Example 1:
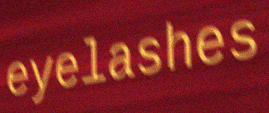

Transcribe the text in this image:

eyelashes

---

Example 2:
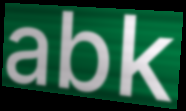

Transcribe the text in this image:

abk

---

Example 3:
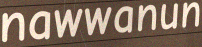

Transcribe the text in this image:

nawwanun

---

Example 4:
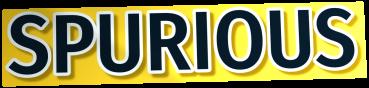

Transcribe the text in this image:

SPURIOUS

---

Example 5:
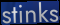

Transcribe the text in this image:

stinks